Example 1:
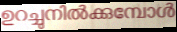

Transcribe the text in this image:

ഉറച്ചുനിൽക്കുമ്പോൾ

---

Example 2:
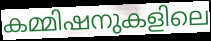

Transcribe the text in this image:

കമ്മിഷനുകളിലെ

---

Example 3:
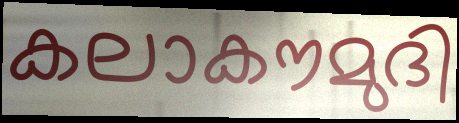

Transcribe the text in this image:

കലാകൗമുദി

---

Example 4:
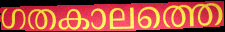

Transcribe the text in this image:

ഗതകാലത്തെ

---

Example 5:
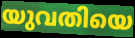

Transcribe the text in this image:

യുവതിയെ